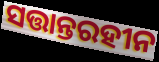
ସତ୍ତାନ୍ତରହୀନ